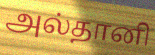
அல்தானி